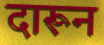
दारून